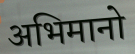
अभिमानो